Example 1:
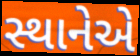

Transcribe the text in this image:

સ્થાનેએ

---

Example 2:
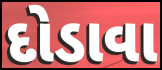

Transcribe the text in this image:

દોડાવા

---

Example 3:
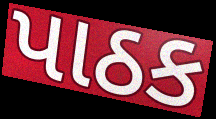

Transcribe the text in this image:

પાઠક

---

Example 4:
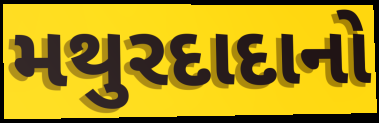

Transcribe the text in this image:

મથુરદાદાનો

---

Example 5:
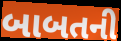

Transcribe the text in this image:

બાબતની